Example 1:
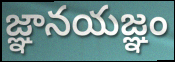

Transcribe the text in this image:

జ్ఞానయజ్ఞం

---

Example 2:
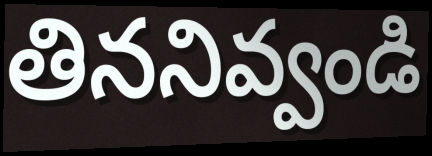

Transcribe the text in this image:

తిననివ్వండి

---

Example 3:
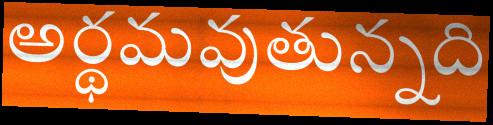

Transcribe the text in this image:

అర్థమవుతున్నది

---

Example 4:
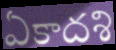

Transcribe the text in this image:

ఏకాదశి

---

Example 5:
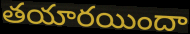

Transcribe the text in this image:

తయారయిందా